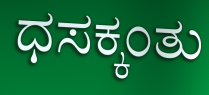
ಧಸಕ್ಕಂತು